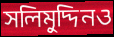
সলিমুদ্দিনও